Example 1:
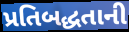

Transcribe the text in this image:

પ્રતિબદ્ધતાની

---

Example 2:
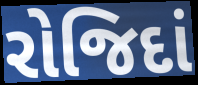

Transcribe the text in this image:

રોજિદાં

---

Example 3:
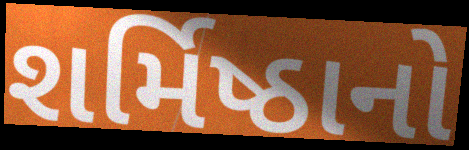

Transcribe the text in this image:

શર્મિષ્ઠાનો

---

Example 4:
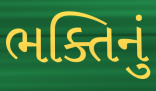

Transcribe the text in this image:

ભક્તિનું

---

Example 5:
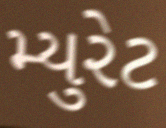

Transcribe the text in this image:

મ્યુરેટ